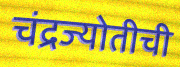
चंद्रज्योतीची